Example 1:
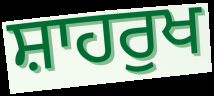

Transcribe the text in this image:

ਸ਼ਾਹਰੁਖ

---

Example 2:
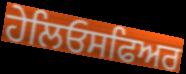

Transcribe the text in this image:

ਹੇਲਿਓਸਫਿਅਰ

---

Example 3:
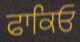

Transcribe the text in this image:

ਫਾਕਿਓ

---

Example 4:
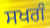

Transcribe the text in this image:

ਸਖਗੰ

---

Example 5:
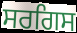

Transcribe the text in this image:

ਸਰਗਿਸ